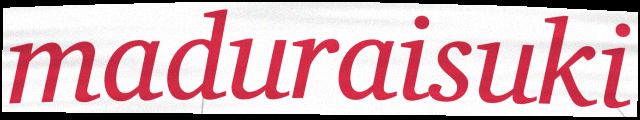
maduraisuki